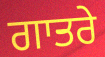
ਗਾਤਰੇ